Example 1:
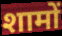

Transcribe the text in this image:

शामों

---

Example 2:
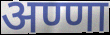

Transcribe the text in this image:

अण्णा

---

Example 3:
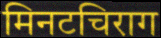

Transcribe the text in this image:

मिनटचिराग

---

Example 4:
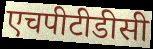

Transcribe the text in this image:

एचपीटीडीसी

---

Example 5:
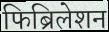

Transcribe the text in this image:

फिब्रिलेशन